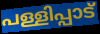
പള്ളിപ്പാട്